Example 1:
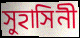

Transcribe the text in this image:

সুহাসিনী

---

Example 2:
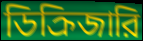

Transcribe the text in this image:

ডিক্রিজারি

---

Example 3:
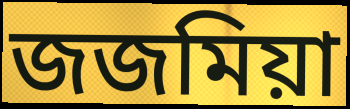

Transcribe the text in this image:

জজমিয়া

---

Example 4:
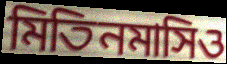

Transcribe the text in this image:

মিতিনমাসিও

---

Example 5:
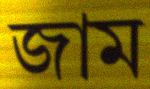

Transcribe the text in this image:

জাম